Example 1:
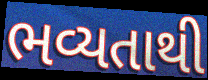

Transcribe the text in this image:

ભવ્યતાથી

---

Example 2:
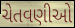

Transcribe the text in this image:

ચેતવણીઓ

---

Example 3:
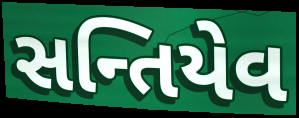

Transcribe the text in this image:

સન્તિયેવ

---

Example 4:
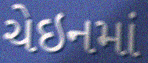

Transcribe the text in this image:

ચેઇનમાં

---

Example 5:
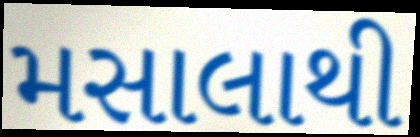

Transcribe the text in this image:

મસાલાથી